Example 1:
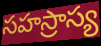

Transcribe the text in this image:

సహస్రాస్య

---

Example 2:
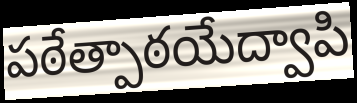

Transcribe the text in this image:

పఠేత్పాఠయేద్వాపి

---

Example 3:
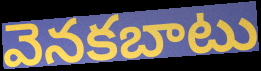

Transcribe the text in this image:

వెనకబాటు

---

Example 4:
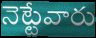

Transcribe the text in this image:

నెట్టేవారు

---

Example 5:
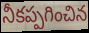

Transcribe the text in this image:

నీకప్పగించిన